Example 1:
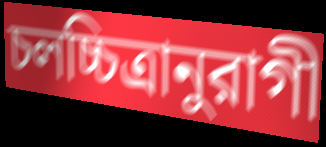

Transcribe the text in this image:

চলচ্চিত্রানুরাগী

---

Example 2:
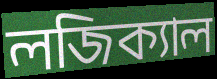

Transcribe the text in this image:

লজিক্যাল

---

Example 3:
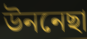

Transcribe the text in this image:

উননেছা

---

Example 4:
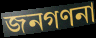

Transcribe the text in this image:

জনগণনা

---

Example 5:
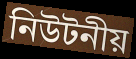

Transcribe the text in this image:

নিউটনীয়